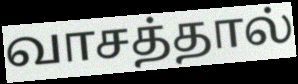
வாசத்தால்